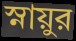
স্নায়ুর